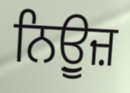
ਨਿਉੂਜ਼